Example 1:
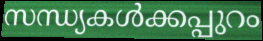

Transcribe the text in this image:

സന്ധ്യകൾക്കപ്പുറം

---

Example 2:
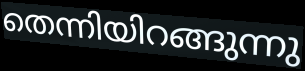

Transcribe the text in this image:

തെന്നിയിറങ്ങുന്നു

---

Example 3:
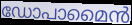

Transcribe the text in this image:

ഡോപാമൈൻ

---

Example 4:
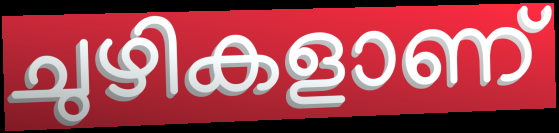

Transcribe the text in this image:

ചുഴികളാണ്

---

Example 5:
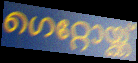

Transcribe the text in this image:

ഗെറ്റോയ്ക്ക്